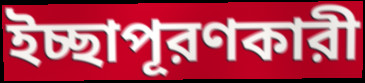
ইচ্ছাপূরণকারী